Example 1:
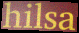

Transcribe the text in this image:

hilsa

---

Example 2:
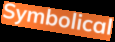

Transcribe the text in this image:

Symbolical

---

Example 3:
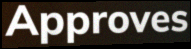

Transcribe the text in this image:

Approves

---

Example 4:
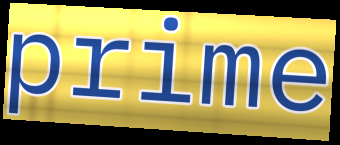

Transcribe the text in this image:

prime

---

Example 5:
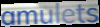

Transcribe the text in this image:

amulets